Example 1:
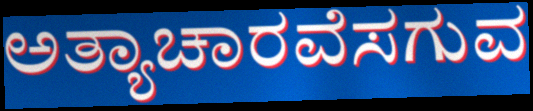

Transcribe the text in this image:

ಅತ್ಯಾಚಾರವೆಸಗುವ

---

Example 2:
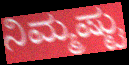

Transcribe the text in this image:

ನಿಮ್ಮಷ್ಟು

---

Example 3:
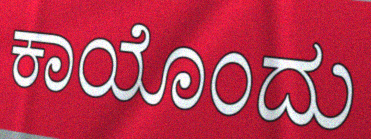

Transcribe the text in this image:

ಕಾಯೊಂದು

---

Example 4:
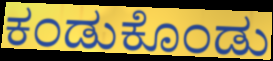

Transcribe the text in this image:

ಕಂಡುಕೊಂಡು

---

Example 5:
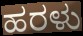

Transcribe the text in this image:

ಹರಳು